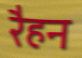
रैहन